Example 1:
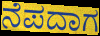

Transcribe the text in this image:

ನೆಪದಾಗ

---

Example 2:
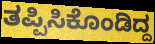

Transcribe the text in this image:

ತಪ್ಪಿಸಿಕೊಂಡಿದ್ದ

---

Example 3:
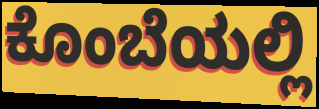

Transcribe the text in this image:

ಕೊಂಬೆಯಲ್ಲಿ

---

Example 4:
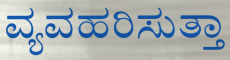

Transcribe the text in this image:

ವ್ಯವಹರಿಸುತ್ತಾ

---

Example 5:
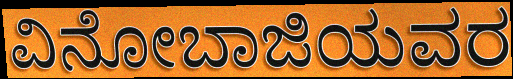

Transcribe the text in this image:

ವಿನೋಬಾಜಿಯವರ